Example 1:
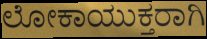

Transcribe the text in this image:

ಲೋಕಾಯುಕ್ತರಾಗಿ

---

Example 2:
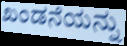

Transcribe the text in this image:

ಖಂಡನೆಯನ್ನು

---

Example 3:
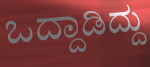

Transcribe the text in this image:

ಒದ್ದಾಡಿದ್ದು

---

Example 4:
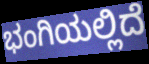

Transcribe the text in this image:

ಭಂಗಿಯಲ್ಲಿದೆ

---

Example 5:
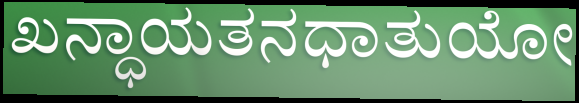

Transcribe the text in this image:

ಖನ್ಧಾಯತನಧಾತುಯೋ